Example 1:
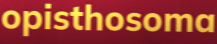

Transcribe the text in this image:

opisthosoma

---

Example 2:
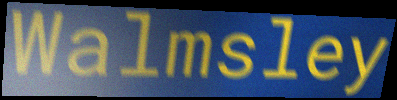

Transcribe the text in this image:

Walmsley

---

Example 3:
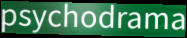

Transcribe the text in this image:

psychodrama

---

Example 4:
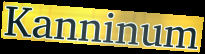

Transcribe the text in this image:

Kanninum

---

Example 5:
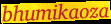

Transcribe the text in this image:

bhumikaoza